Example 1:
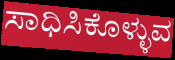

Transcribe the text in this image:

ಸಾಧಿಸಿಕೊಳ್ಳುವ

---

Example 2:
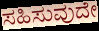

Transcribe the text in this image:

ಸಹಿಸುವುದೇ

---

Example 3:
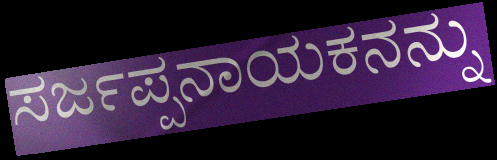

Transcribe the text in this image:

ಸರ್ಜಪ್ಪನಾಯಕನನ್ನು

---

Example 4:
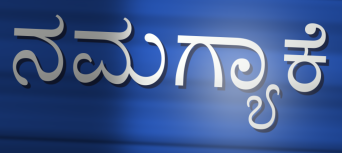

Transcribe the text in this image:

ನಮಗ್ಯಾಕೆ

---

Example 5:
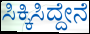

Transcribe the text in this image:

ಸಿಕ್ಕಿಸಿದ್ದೇನೆ